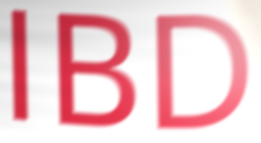
IBD